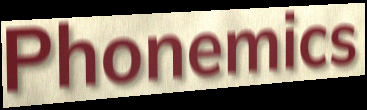
Phonemics